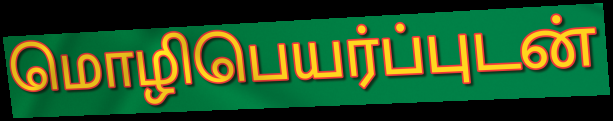
மொழிபெயர்ப்புடன்